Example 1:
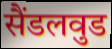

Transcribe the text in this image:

सैंडलवुड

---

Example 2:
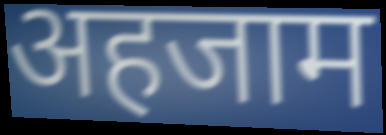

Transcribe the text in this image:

अहजाम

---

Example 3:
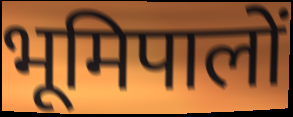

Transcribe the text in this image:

भूमिपालों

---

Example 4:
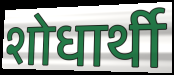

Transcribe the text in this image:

शोधार्थी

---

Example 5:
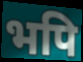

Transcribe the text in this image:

भपि